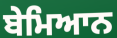
ਬੇਮਿਆਨ